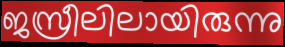
ജസ്രീലിലായിരുന്നു